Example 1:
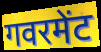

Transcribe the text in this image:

गवरमेंट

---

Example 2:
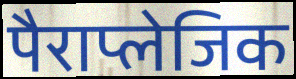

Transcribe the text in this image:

पैराप्लेजिक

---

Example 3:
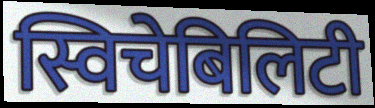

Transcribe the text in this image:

स्विचेबिलिटी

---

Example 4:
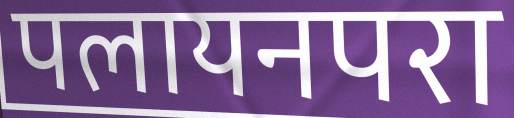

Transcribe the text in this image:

पलायनपरा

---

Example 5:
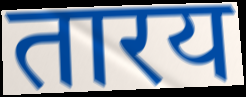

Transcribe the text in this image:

तारय